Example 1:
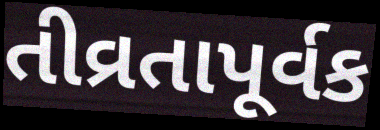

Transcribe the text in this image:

તીવ્રતાપૂર્વક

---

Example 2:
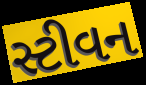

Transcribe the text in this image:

સ્ટીવન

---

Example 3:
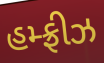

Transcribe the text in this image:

હમ્ફ્રીઝ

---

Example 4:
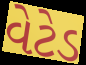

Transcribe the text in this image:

વેટેડ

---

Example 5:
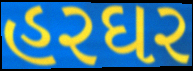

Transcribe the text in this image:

હરઘર